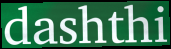
dashthi